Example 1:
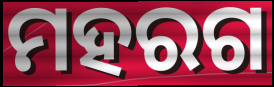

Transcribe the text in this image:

ମହରଗ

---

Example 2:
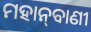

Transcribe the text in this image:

ମହାନ୍‌ବାଣୀ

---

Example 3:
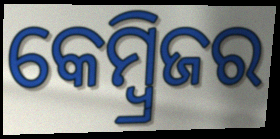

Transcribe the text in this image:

କେମ୍ବ୍ରିଜର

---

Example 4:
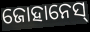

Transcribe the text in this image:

ଜୋହାନେସ୍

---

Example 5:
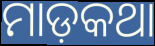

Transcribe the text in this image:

ମାଡ଼କଥା